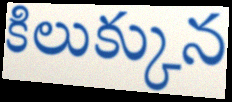
కిలుక్కున